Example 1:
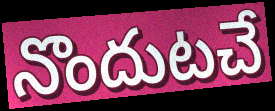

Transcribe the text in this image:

నొందుటచే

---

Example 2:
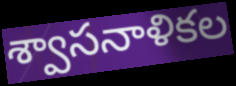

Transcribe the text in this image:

శ్వాసనాళికల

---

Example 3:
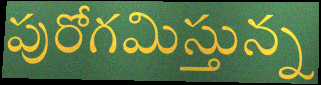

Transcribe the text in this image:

పురోగమిస్తున్న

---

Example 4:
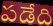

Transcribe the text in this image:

పడేది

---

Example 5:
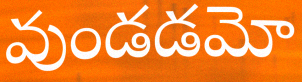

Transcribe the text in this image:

వుండడమో